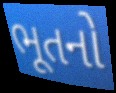
ભૂતનો